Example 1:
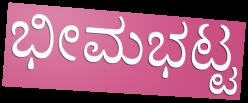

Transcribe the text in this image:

ಭೀಮಭಟ್ಟ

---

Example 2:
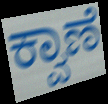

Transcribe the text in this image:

ಕ್ವಾಣೆ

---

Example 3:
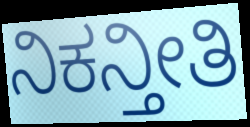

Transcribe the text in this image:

ನಿಕನ್ತೀತಿ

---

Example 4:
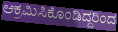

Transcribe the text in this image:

ಆಕ್ರಮಿಸಿಕೊಂಡಿದ್ದರಿಂದ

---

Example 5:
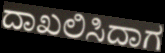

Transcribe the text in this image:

ದಾಖಲಿಸಿದಾಗ